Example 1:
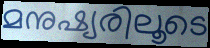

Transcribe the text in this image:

മനുഷ്യരിലൂടെ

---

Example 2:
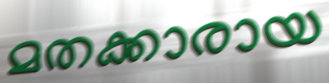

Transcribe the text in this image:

മതക്കാരായ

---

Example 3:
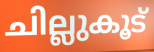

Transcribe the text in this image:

ചില്ലുകൂട്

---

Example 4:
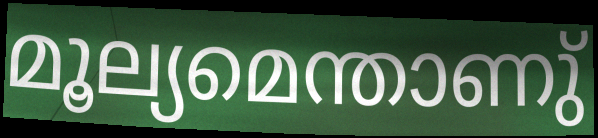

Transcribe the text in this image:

മൂല്യമെന്താണു്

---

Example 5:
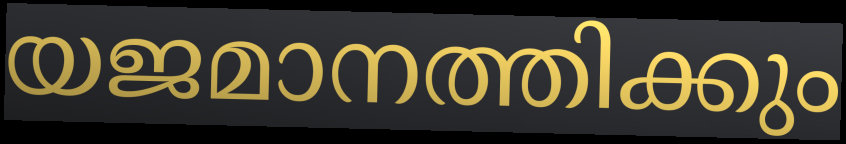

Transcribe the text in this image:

യജമാനത്തിക്കും